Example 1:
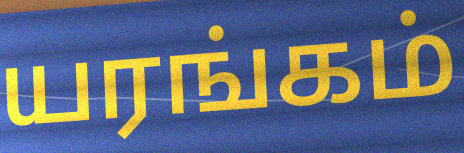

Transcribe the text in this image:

யரங்கம்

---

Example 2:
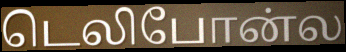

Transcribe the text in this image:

டெலிபோன்ல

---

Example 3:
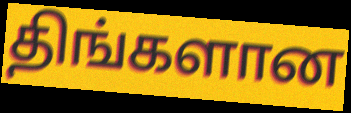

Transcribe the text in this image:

திங்களான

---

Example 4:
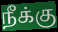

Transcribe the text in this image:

நீக்கு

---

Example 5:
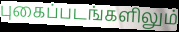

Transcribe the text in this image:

புகைப்படங்களிலும்